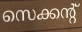
സെക്കന്റ്